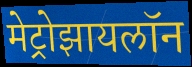
मेट्रोझायलॉन